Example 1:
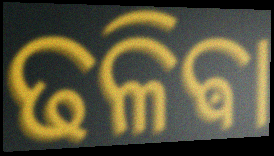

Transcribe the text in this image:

ଢଳିଵା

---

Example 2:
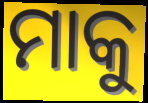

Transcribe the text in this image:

ମାକୁ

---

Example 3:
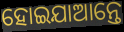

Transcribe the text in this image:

ହୋଇଯାଆନ୍ତେ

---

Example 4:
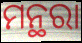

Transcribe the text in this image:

ମନ୍ଥରା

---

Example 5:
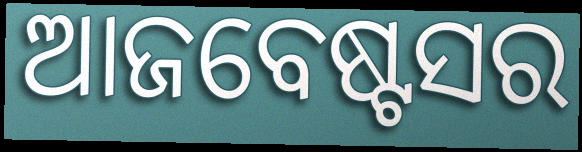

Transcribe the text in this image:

ଆଜବେଷ୍ଟସର